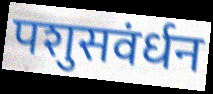
पशुसवंर्धन